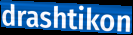
drashtikon